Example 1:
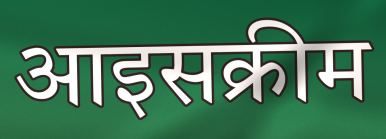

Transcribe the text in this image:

आइसक्रीम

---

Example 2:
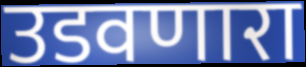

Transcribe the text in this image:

उडवणारा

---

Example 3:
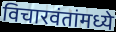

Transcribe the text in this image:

विचारवंतांमध्ये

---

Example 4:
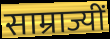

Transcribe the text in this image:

साम्राज्यीं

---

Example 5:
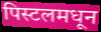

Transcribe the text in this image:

पिस्टलमधून